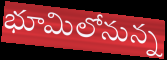
భూమిలోనున్న